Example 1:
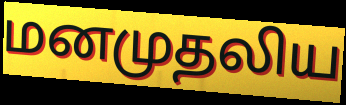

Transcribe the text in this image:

மனமுதலிய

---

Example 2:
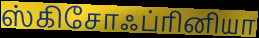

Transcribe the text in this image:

ஸ்கிசோஃப்ரினியா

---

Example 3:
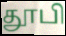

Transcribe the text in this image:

தூபி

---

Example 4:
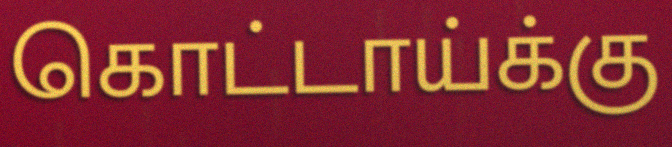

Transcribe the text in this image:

கொட்டாய்க்கு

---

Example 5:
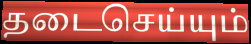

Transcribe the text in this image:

தடைசெய்யும்